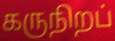
கருநிறப்